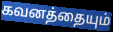
கவனத்தையும்